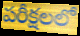
పరీక్షలలో